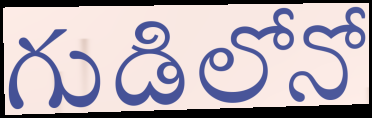
గుడిలోనో